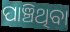
ପାଞ୍ଚିଥିବା